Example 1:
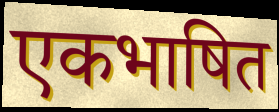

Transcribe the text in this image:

एकभाषित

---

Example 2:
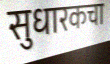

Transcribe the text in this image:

सुधारकचा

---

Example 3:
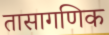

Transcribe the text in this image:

तासागणिक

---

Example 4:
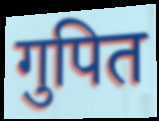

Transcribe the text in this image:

गुपित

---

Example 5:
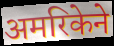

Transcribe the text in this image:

अमरिकेने